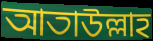
আতাউল্লাহ